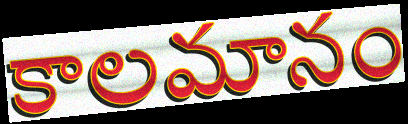
కాలమానం